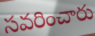
సవరించారు